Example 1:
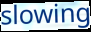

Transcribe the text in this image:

slowing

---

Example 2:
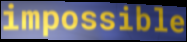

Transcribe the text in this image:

impossible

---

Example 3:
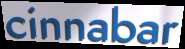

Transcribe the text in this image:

cinnabar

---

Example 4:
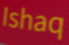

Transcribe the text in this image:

Ishaq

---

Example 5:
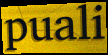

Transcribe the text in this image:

puali